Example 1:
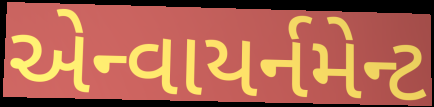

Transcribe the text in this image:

એન્વાયર્નમેન્ટ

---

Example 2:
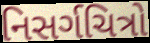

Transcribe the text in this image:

નિસર્ગચિત્રો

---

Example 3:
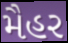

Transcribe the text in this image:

મૈહર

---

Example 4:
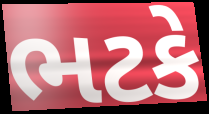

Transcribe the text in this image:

ભટકે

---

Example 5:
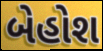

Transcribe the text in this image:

બેહોશ